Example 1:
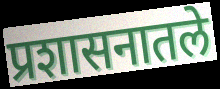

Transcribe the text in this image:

प्रशासनातले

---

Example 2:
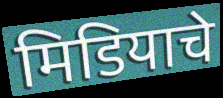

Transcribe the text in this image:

मिडियाचे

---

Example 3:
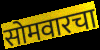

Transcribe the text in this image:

सोमवारचा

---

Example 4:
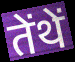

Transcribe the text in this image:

तेंथें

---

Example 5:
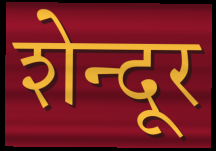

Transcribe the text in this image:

शेन्दूर